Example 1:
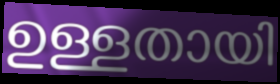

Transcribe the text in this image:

ഉള്ളതായി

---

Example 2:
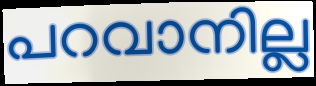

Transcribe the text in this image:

പറവാനില്ല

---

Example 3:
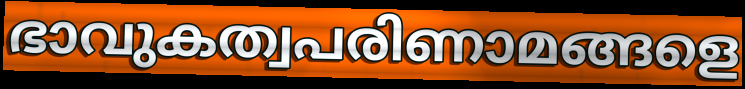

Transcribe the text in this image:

ഭാവുകത്വപരിണാമങ്ങളെ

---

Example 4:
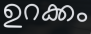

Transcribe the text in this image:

ഉറക്കം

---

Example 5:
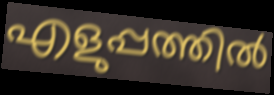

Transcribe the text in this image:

എളുപ്പത്തിൽ